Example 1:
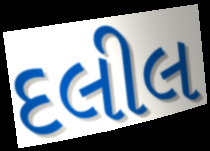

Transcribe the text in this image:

દલીલ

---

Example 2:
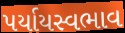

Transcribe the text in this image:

પર્યાયસ્વભાવ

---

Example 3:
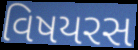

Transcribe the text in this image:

વિષયરસ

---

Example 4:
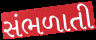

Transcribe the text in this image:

સંભળાતી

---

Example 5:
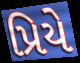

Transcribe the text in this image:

પ્રિયે